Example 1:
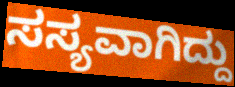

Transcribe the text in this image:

ಸಸ್ಯವಾಗಿದ್ದು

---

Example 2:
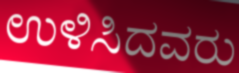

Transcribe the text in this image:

ಉಳಿಸಿದವರು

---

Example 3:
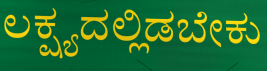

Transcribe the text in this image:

ಲಕ್ಷ್ಯದಲ್ಲಿಡಬೇಕು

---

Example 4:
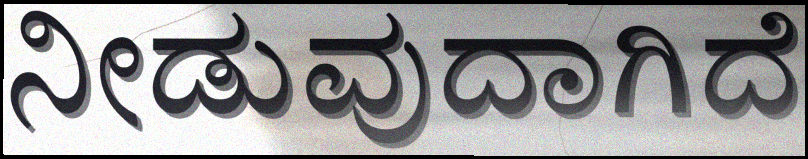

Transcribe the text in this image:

ನೀಡುವುದಾಗಿದೆ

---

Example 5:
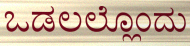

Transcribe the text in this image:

ಒಡಲಲ್ಲೊಂದು